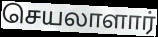
செயலாளார்